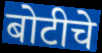
बोटीचे